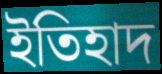
ইতিহাদ